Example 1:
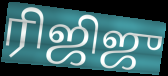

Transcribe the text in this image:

ரிஜிஜு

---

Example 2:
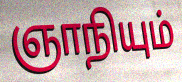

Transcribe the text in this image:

ஞாநியும்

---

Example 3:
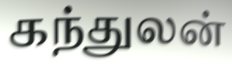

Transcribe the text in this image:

கந்துலன்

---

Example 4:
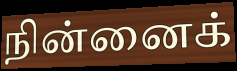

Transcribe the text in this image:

நின்னைக்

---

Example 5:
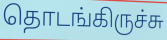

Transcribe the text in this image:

தொடங்கிருச்சு